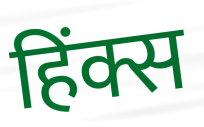
हिंक्स